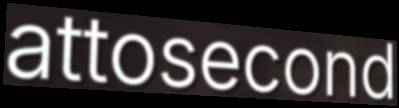
attosecond